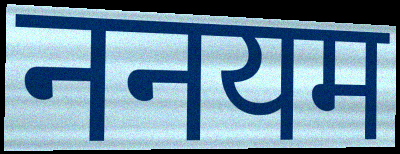
ननयम